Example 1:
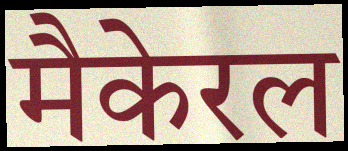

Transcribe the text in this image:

मैकेरल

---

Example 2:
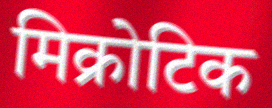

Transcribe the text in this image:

मिक्रोटिक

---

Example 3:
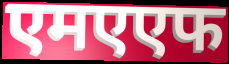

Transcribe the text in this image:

एमएएफ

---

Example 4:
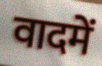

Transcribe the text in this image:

वादमें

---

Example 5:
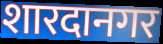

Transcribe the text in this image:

शारदानगर